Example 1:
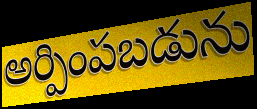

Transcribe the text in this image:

అర్పింపబడును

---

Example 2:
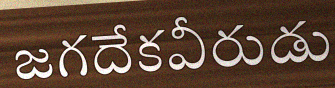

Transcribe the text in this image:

జగదేకవీరుడు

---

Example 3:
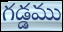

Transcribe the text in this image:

గడ్డము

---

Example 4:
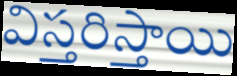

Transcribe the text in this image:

విస్తరిస్తాయి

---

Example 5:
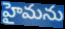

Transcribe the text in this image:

హైమను